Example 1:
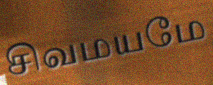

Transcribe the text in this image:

சிவமயமே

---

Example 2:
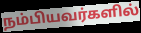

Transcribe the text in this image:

நம்பியவர்களில்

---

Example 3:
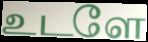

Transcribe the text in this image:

உடளே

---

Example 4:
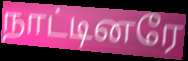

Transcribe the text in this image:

நாட்டினரே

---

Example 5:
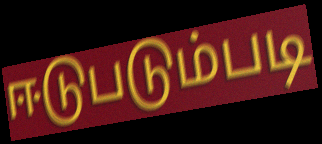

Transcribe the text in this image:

ஈடுபடும்படி